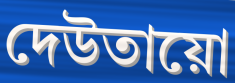
দেউতায়ো